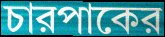
চারপাকের